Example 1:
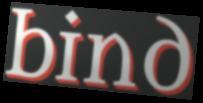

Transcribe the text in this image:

bind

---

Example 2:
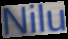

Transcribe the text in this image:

Nilu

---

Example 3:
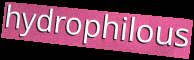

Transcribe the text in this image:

hydrophilous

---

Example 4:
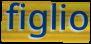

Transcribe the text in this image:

figlio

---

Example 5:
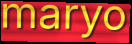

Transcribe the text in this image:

maryo